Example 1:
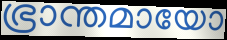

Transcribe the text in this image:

ഭ്രാന്തമായോ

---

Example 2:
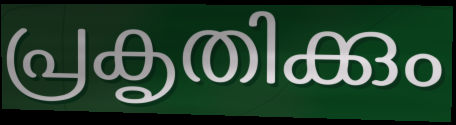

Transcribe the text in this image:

പ്രകൃതിക്കും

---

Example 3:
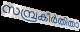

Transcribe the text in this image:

സമ്പ്രകീർതിതാ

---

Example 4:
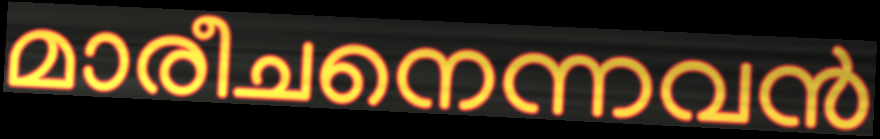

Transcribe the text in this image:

മാരീചനെന്നവൻ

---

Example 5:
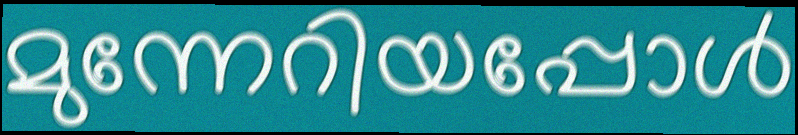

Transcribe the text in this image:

മുന്നേറിയപ്പോൾ